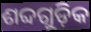
ଶବ୍ଦଗୁଡ଼ିକ